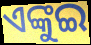
ଏଙ୍କୁଇ